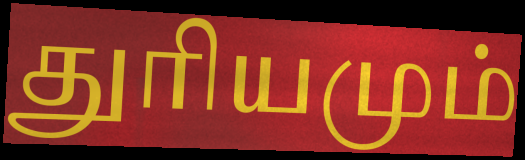
துரியமும்